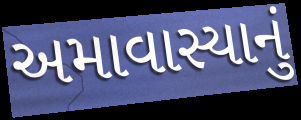
અમાવાસ્યાનું